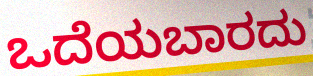
ಒದೆಯಬಾರದು